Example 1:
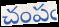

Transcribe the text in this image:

చంపఁ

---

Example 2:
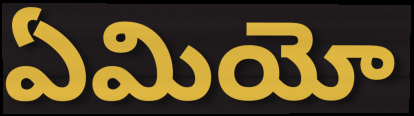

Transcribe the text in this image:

ఏమియో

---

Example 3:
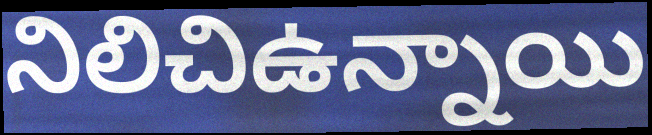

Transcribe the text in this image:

నిలిచిఉన్నాయి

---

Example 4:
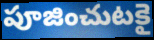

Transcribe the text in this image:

పూజించుటకై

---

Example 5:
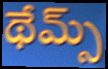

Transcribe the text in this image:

థేమ్స్